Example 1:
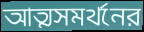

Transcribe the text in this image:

আত্মসমর্থনের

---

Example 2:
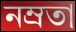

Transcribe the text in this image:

নম্রতা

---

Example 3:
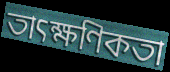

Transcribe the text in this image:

তাৎক্ষণিকতা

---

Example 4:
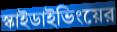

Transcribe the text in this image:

স্কাইডাইভিংয়ের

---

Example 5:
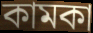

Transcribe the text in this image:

কামকা